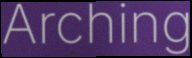
Arching